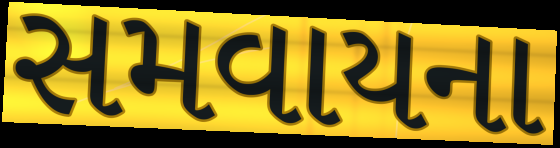
સમવાયના